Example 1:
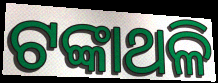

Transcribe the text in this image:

ଟଙ୍କାଥଳି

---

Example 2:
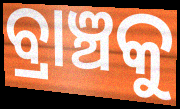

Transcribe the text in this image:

ବ୍ରାଞ୍ଚକୁ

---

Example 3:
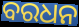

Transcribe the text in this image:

ବରଧନ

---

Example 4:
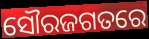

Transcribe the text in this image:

ସୌରଜଗତରେ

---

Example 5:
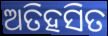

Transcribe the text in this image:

ଅତିହସିତ